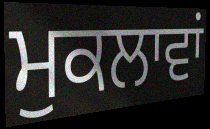
ਮੁਕਲਾਵਾਂ